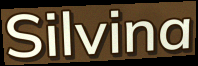
Silvina